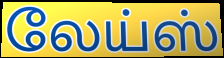
லேய்ஸ்